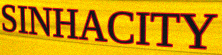
SINHACITY